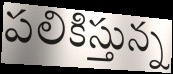
పలికిస్తున్న